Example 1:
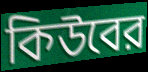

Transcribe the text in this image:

কিউবের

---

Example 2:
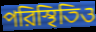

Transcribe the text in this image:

পরিস্থিতিও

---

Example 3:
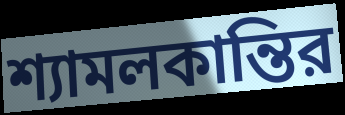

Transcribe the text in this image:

শ্যামলকান্তির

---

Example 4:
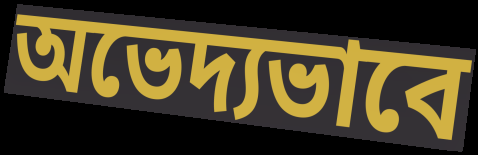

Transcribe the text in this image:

অভেদ্যভাবে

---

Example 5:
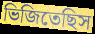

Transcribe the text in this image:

ভিজিতেছিস